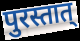
पुरस्तात्